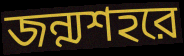
জন্মশহরে